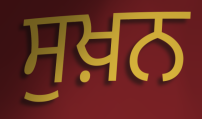
ਸੁਖ਼ਨ